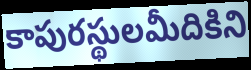
కాపురస్థులమీదికిని